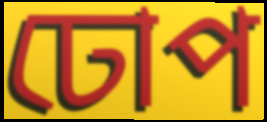
ঢোপ